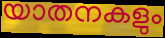
യാതനകളും